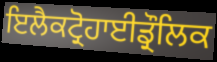
ਇਲੈਕਟ੍ਰੋਹਾਈਡ੍ਰੌਲਿਕ